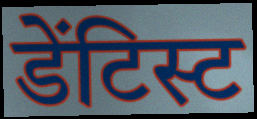
डेंटिस्ट